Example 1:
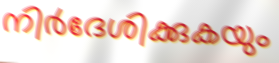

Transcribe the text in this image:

നിർദേശിക്കുകയും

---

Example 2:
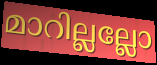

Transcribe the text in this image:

മാറില്ലല്ലോ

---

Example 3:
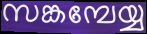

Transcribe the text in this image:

സങ്കമ്പേയ്യ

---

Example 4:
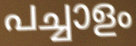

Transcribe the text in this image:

പച്ചാളം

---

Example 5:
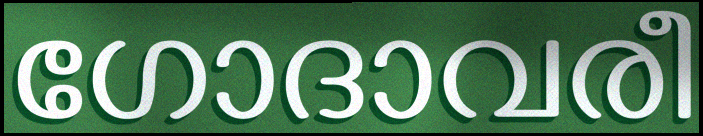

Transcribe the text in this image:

ഗോദാവരീ